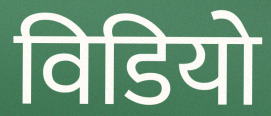
विडियो